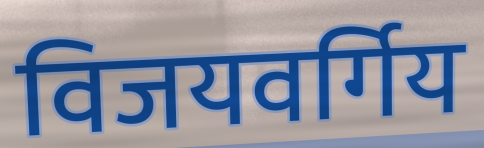
विजयवर्गिय